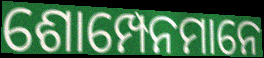
ଶୋମ୍ପେନମାନେ